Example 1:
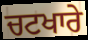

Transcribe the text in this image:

ਚਟਖਾਰੇ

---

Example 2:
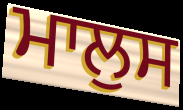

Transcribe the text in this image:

ਮਾਲੁਸ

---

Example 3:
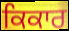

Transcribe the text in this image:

ਕਿਕਾਰ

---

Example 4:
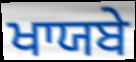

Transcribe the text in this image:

ਖਾਯਬੇ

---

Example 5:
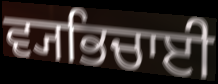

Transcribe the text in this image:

ਵ੍ਯਭਿਚਾਈ